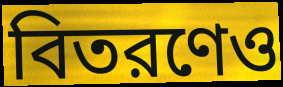
বিতরণেও